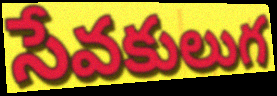
సేవకులుగ